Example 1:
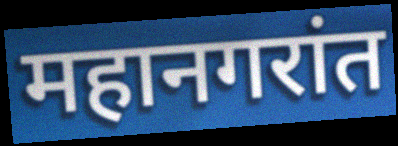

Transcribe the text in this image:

महानगरांत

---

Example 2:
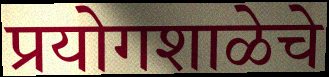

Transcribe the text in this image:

प्रयोगशाळेचे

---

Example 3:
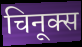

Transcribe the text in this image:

चिनूक्स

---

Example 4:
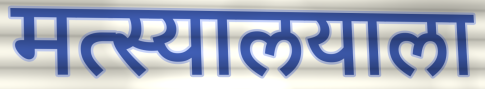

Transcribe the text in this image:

मत्स्यालयाला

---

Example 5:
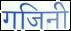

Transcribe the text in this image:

गजिनी